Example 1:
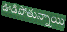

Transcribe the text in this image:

ఊడిపోతున్నాయి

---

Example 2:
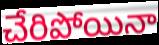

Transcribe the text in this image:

చేరిపోయినా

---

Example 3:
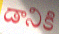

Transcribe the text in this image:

డానికి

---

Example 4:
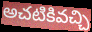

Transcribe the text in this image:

అచటికివచ్చి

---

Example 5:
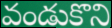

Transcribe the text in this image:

వండుకొని